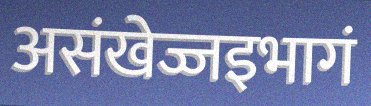
असंखेज्जइभागं